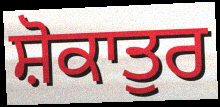
ਸ਼ੋਕਾਤੁਰ